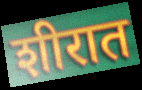
शीरात